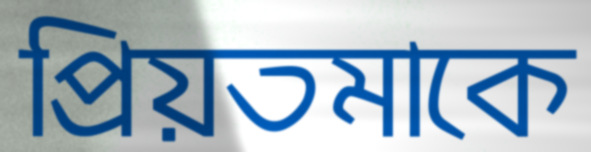
প্রিয়তমাকে